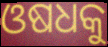
ଓଷଧକୁ